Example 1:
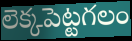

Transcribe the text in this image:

లెక్కపెట్టగలం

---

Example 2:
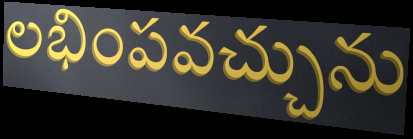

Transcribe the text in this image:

లభింపవచ్చును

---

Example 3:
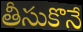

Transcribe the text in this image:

తీసుకొనే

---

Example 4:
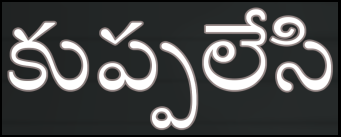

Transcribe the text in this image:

కుప్పలేసి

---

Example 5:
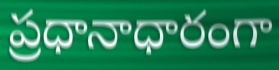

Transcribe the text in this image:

ప్రధానాధారంగా